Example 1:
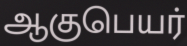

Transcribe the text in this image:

ஆகுபெயர்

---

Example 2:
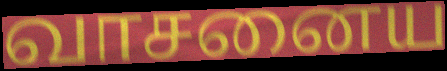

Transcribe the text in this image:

வாசனைய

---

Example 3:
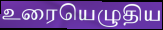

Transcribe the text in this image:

உரையெழுதிய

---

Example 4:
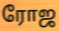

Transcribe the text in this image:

ரோஜ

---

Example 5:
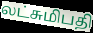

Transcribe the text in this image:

லட்சுமிபதி